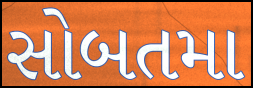
સોબતમા